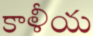
కాళీయ